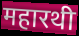
महारथी